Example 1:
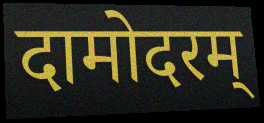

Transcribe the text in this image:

दामोदरम्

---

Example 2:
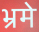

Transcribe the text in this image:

भ्रमे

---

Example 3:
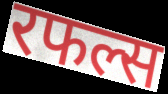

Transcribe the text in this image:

रफल्स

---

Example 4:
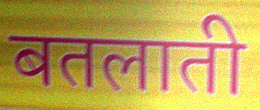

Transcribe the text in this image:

बतलाती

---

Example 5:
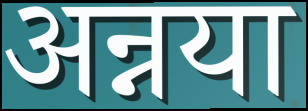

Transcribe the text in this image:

अन्नया